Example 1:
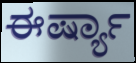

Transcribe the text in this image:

ಈರ್ಷ್ಯಾ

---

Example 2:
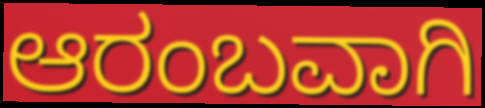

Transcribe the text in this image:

ಆರಂಬವಾಗಿ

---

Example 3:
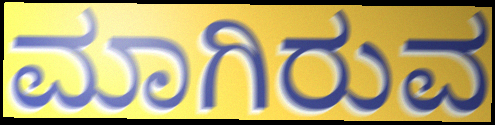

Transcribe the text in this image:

ಮಾಗಿರುವ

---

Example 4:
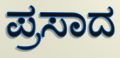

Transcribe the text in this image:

ಪ್ರಸಾದ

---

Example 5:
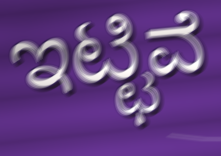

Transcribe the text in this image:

ಇಟ್ಟಿವೆ